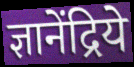
ज्ञानेंद्रिये